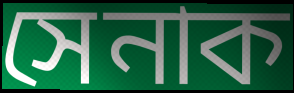
সেনাক